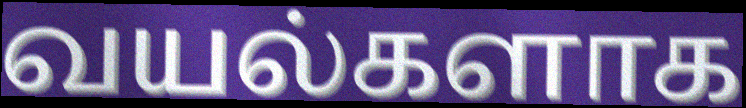
வயல்களாக